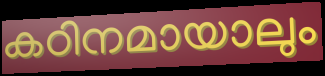
കഠിനമായാലും